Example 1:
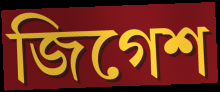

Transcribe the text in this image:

জিগেশ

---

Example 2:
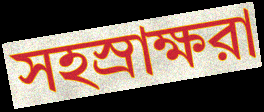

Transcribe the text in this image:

সহস্রাক্ষরা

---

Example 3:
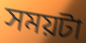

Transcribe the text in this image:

সময়টা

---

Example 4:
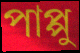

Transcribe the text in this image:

পাপ্পু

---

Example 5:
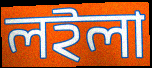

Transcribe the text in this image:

লইলা